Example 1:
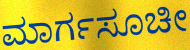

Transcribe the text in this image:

ಮಾರ್ಗಸೂಚೀ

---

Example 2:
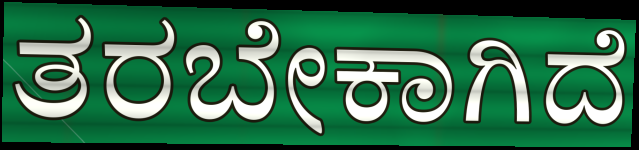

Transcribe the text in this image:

ತರಬೇಕಾಗಿದೆ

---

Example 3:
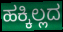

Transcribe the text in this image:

ಹಕ್ಕಿಲ್ಲದ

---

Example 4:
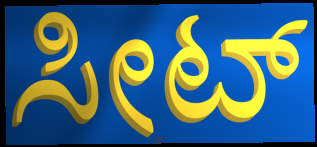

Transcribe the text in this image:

ಸೀಟ್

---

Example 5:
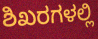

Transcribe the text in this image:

ಶಿಖರಗಳಲ್ಲಿ